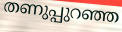
തണുപ്പുറഞ്ഞ